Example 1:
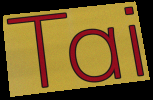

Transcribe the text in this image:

Tai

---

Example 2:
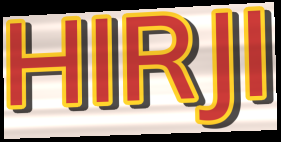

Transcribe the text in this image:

HIRJI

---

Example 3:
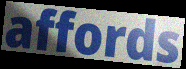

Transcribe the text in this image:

affords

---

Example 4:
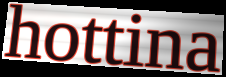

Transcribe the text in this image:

hottina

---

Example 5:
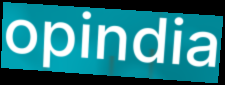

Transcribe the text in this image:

opindia